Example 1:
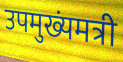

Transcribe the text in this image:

उपमुख्यंमत्री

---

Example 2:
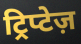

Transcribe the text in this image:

ट्रिप्टेज़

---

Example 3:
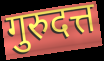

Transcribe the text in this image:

गुरुदत्त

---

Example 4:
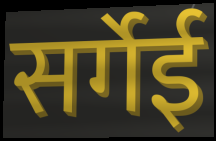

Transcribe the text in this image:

सर्गेई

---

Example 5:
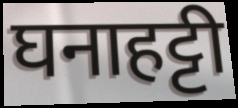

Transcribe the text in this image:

घनाहट्टी